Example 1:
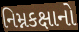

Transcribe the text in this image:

નિમ્નકક્ષાનો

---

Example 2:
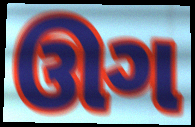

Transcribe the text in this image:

ઊગ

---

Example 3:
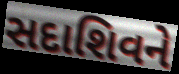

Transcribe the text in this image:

સદાશિવને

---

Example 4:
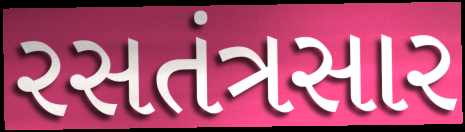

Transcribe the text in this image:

રસતંત્રસાર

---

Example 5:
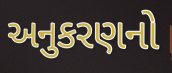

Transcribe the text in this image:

અનુકરણનો